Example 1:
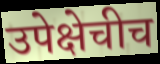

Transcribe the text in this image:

उपेक्षेचीच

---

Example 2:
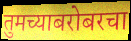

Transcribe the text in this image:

तुमच्याबरोबरचा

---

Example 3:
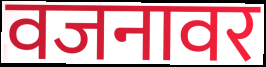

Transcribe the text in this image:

वजनावर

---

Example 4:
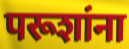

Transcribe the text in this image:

परूशांना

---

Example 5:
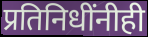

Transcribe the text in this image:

प्रतिनिधींनीही